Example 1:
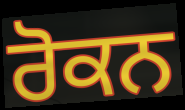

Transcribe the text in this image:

ਰੋਕਨ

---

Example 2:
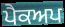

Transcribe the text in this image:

ਪੈਕਅਪ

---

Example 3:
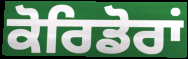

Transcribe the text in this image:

ਕੋਰਿਡੋਰਾਂ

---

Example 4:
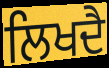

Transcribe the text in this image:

ਲਿਖਦੈ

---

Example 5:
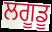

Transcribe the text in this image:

ਲਗੂਡੂ